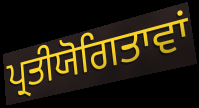
ਪ੍ਰਤੀਯੋਗਿਤਾਵਾਂ